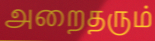
அறைதரும்